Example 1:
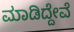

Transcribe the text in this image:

ಮಾಡಿದ್ದೇವೆ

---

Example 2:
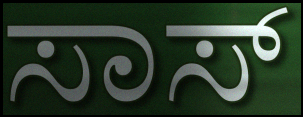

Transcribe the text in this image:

ಸಾಸ್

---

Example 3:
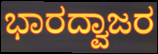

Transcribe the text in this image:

ಭಾರದ್ವಾಜರ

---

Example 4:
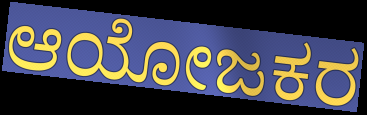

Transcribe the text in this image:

ಆಯೋಜಕರ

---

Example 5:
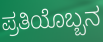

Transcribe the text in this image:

ಪ್ರತಿಯೊಬ್ಬನ